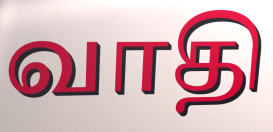
வாதி